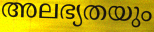
അലഭ്യതയും